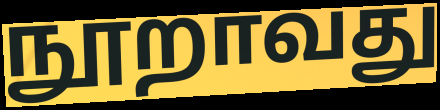
நூறாவது